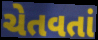
ચેતવતાં